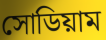
সোডিয়াম